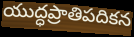
యుద్ధప్రాతిపదికన